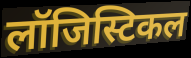
लॉजिस्टिकल